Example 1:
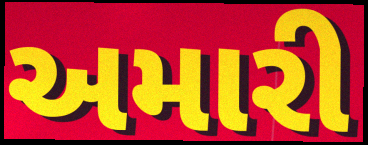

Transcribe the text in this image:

અમારી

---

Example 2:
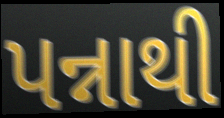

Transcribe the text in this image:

પન્નાથી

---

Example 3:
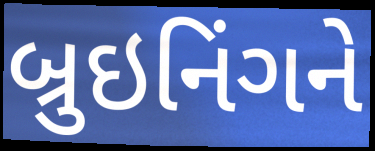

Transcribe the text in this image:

બ્રુઇનિંગને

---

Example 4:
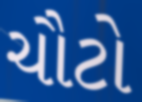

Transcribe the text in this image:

ચૌટો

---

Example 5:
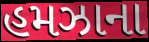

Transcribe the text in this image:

હમઝાના